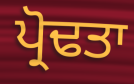
ਪ੍ਰੋਢਤਾ